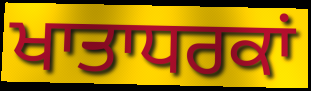
ਖਾਤਾਧਰਕਾਂ